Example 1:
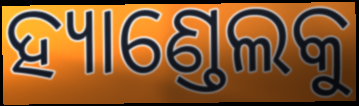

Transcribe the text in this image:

ହ୍ୟାଣ୍ଡେଲକୁ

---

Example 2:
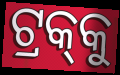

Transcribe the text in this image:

ଟ୍ରକ୍‍କୁ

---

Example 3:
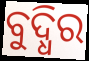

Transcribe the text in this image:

ବୁଦ୍ଧିର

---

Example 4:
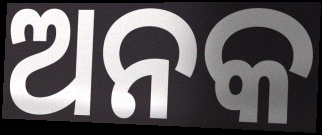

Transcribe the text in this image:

ଅନକ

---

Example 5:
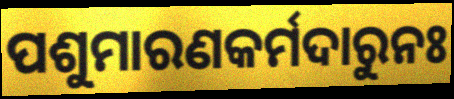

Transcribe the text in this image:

ପଶୁମାରଣକର୍ମଦାରୁନଃ